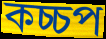
কচ্চপ